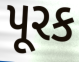
પૂરક